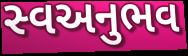
સ્વઅનુભવ